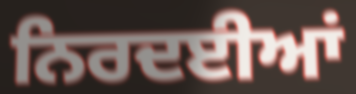
ਨਿਰਦਈਆਂ